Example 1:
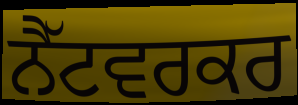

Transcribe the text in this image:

ਨੈੱਟਵਰਕਰ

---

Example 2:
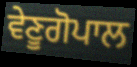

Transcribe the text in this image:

ਵੇਣੂਗੋਪਾਲ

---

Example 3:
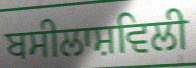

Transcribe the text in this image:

ਬਸੀਲਾਸ਼ਵਿਲੀ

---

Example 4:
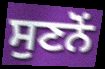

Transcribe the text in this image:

ਸੁਣਨੋਂ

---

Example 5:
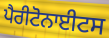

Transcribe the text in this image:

ਪੈਰੀਟੋਨਾਈਟਸ